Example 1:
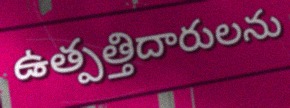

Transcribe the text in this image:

ఉత్పత్తిదారులను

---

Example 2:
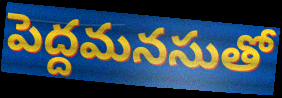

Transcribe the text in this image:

పెద్దమనసుతో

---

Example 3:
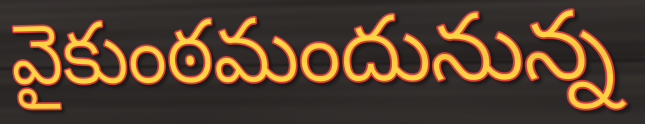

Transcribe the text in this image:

వైకుంఠమందునున్న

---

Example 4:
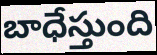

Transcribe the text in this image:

బాధేస్తుంది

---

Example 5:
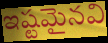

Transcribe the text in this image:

ఇష్టమైనవి